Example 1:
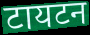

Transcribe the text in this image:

टायटन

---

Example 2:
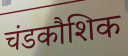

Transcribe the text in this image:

चंडकौशिक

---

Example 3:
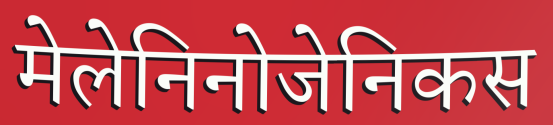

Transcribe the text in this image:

मेलेनिनोजेनिकस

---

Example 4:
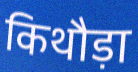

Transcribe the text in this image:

किथौड़ा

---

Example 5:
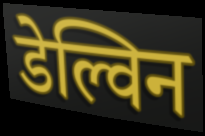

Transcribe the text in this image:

डेल्विन